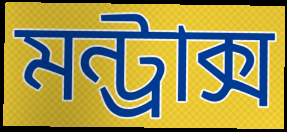
মন্ট্রাক্স